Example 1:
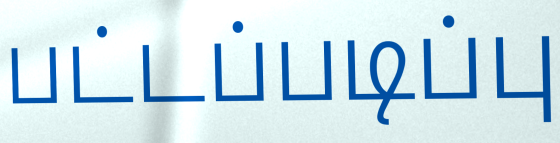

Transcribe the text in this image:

பட்டப்படிப்பு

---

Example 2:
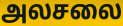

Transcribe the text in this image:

அலசலை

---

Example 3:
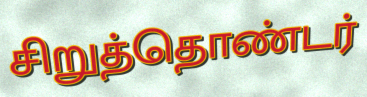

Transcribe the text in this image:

சிறுத்தொண்டர்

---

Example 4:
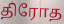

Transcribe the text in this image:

திரோத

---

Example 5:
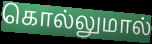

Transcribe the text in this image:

கொல்லுமால்